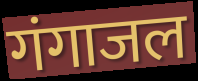
गंगाजल